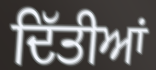
ਦਿੱਤੀਆਂ